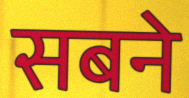
सबने